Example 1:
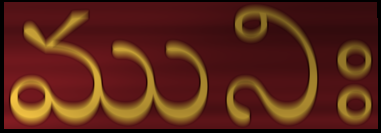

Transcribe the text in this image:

మునిః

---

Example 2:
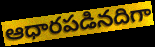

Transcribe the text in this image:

ఆధారపడినదిగా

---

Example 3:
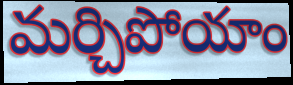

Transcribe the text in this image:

మర్చిపోయాం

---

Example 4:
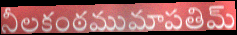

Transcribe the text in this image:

నీలకంఠముమాపతిమ్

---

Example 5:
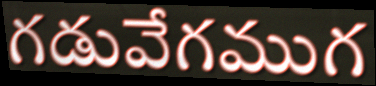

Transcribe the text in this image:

గడువేగముగ